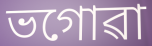
ভগোৱা